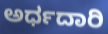
ಅರ್ಧದಾರಿ